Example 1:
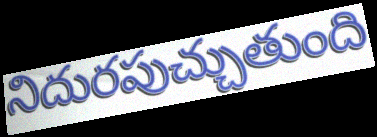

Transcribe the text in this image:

నిదురపుచ్చుతుంది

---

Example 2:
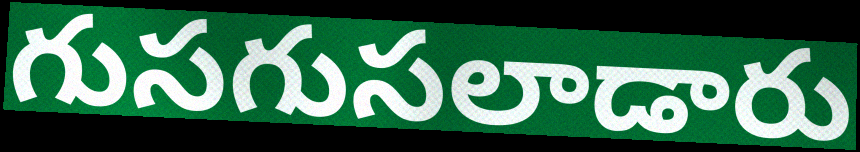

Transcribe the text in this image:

గుసగుసలాడారు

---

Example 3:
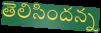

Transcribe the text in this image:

తెలిసిందన్న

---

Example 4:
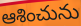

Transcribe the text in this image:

ఆశించును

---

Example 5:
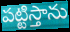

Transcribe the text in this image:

పట్టిస్తాను